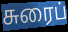
சுரைப்